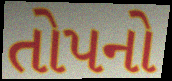
તોપનો